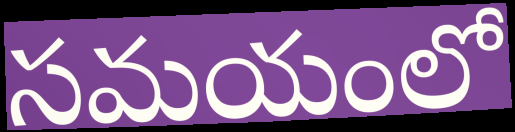
సమయంలో